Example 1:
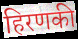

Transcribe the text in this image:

हिरणकी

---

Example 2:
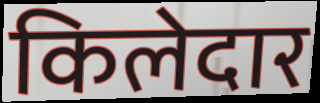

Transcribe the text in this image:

किलेदार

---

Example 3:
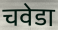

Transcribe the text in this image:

चवेडा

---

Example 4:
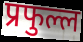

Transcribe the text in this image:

प्रफुल्ल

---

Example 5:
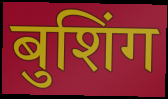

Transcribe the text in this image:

बुशिंग